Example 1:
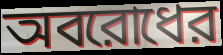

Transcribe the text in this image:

অবরোধের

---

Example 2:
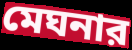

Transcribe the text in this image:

মেঘনার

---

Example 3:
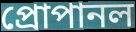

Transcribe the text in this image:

প্রোপানল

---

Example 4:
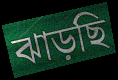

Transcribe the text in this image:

ঝাড়ছি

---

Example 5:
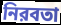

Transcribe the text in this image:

নিরবতা